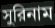
সুরিনাম